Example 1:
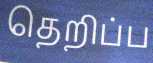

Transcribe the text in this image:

தெறிப்ப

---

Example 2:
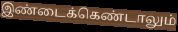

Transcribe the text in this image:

இண்டைக்கெண்டாலும்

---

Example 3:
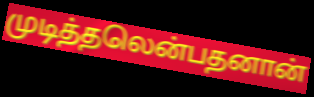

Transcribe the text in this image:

முடித்தலென்பதனான்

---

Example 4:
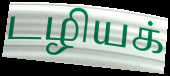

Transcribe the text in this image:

டழியக்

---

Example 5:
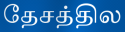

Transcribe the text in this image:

தேசத்தில